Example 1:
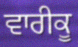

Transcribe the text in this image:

ਵਾਰੀਕੂ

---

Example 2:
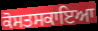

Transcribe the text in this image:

ਕੋਸਤਸਕਾਇਆ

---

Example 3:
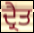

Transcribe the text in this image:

ਦ੍ਰੈਤ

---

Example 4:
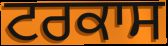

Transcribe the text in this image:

ਟਰਕਾਸ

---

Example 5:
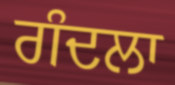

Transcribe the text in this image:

ਗੰਦਲਾ